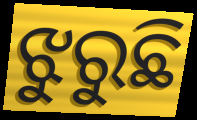
ଝୁରୁଛି